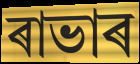
ৰাভাৰ